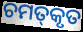
ଚମତ୍‍କୃତ